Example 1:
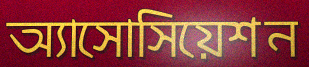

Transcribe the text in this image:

অ্যাসোসিয়েশন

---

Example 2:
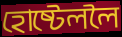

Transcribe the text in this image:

হোষ্টেললৈ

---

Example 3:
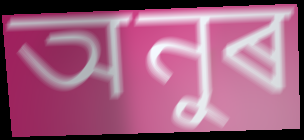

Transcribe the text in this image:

অনুৰ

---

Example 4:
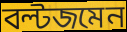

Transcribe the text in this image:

বল্টজমেন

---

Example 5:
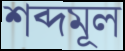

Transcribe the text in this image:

শব্দমূল